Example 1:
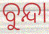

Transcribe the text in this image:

ବୁନ୍ଦା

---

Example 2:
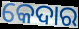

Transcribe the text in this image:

କେଦାର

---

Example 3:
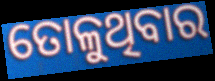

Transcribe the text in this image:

ତୋଳୁଥିବାର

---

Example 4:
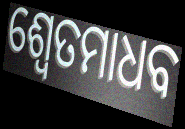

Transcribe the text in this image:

ଶ୍ୱେତମାଧବ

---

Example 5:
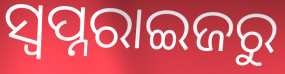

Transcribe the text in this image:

ସ୍ୱପ୍ନରାଇଜରୁ